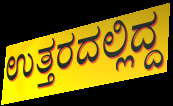
ಉತ್ತರದಲ್ಲಿದ್ದ